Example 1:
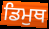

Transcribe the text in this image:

ਡਿਮੁਥ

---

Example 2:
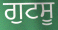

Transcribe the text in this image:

ਗੁਟਸੂ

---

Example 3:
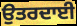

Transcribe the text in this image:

ਉਤਰਦਾਈ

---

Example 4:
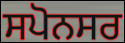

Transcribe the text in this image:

ਸਪੋਨਸਰ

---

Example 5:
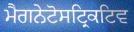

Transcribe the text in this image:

ਮੈਗਨੇਟੋਸਟ੍ਰਿਕਟਿਵ